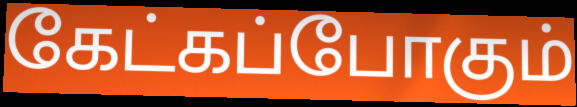
கேட்கப்போகும்